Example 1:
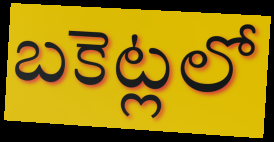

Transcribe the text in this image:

బకెట్లలో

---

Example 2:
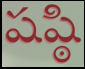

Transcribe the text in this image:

షష్ఠి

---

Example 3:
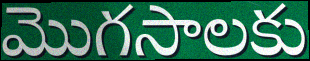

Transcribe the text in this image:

మొగసాలకు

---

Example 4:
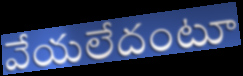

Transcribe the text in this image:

వేయలేదంటూ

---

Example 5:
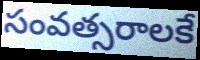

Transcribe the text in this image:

సంవత్సరాలకే